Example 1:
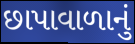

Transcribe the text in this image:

છાપાવાળાનું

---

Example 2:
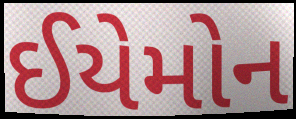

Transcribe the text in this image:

ઈયેમોન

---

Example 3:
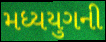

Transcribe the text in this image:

મધ્યયુગની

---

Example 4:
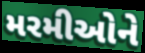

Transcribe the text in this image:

મરમીઓને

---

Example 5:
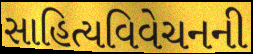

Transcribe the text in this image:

સાહિત્યવિવેચનની